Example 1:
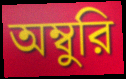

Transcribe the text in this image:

অম্বুরি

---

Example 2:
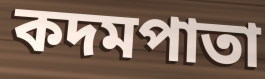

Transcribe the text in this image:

কদমপাতা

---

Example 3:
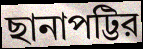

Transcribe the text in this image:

ছানাপট্টির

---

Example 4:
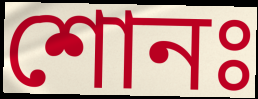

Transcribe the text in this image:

শোনঃ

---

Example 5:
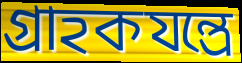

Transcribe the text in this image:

গ্রাহকযন্ত্রে